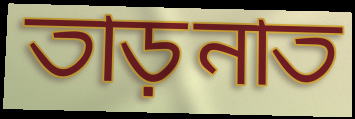
তাড়নাত